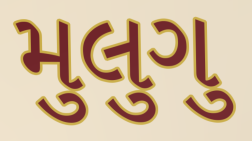
મુલુગુ